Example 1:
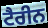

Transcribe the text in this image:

ਟੈਰੀਨ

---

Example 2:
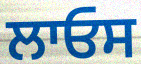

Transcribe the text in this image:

ਲਾਓਸ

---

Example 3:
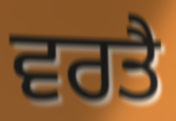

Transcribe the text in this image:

ਵਰਤੈ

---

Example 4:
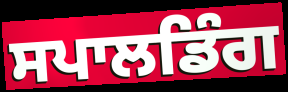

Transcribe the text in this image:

ਸਪਾਲਡਿੰਗ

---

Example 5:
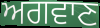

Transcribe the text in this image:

ਅਗਵਾਣ